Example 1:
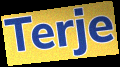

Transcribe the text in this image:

Terje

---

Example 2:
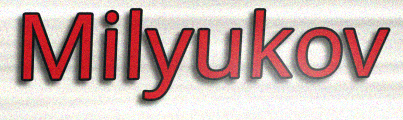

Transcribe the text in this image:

Milyukov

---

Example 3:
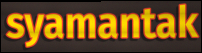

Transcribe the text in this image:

syamantak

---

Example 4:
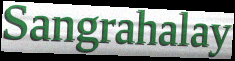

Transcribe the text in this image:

Sangrahalay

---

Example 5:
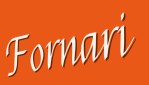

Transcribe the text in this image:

Fornari